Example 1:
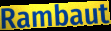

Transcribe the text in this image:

Rambaut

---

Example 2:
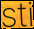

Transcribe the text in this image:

sti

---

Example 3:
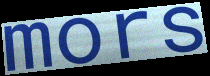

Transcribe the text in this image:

mors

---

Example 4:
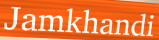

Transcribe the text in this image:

Jamkhandi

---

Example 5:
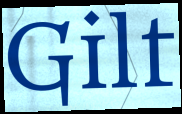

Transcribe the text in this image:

Gilt